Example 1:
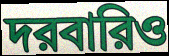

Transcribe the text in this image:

দরবারিও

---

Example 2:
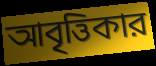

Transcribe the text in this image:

আবৃত্তিকার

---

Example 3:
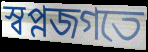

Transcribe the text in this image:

স্বপ্নজগতে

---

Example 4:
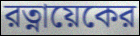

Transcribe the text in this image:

রত্নায়েকের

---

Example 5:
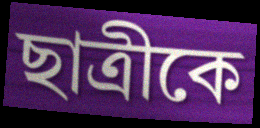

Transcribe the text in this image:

ছাত্রীকে